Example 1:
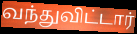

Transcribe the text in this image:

வந்துவிட்டார்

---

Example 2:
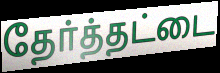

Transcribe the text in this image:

தேர்த்தட்டை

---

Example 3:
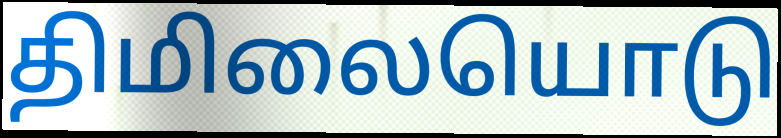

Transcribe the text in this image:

திமிலையொடு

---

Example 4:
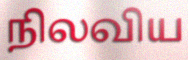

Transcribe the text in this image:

நிலவிய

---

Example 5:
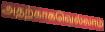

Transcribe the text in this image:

அதற்காகவெல்லாம்